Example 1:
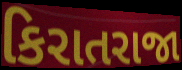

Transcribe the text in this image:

કિરાતરાજા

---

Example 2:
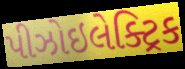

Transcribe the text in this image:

પીઝોઇલેક્ટ્રિક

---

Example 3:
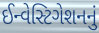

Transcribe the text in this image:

ઈન્વેસ્ટિગેશનનું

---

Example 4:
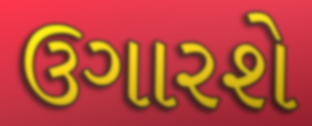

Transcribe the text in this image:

ઉગારશે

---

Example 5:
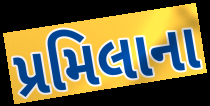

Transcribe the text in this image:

પ્રમિલાના